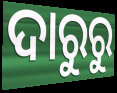
ଦାରୁରୁ